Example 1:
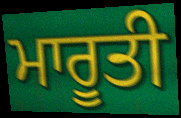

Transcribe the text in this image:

ਮਾਰੂਤੀ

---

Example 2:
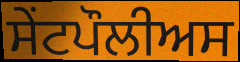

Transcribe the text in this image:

ਸੇਂਟਪੌਲੀਅਸ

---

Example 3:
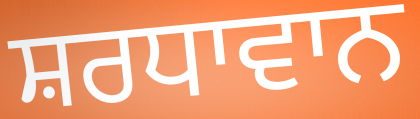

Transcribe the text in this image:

ਸ਼ਰਧਾਵਾਨ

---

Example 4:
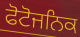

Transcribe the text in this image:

ਫੋਟੋਜਨਿਕ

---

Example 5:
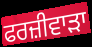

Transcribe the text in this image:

ਫਰਜ਼ੀਵਾੜਾ